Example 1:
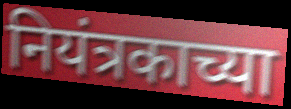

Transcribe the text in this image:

नियंत्रकाच्या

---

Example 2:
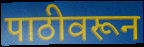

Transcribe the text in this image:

पाठीवरून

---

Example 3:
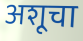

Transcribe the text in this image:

अश्रूचा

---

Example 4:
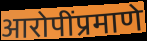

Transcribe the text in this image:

आरोपींप्रमाणे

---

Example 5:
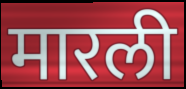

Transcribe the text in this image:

मारली